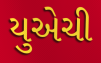
યુએચી